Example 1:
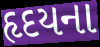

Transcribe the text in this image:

હૃદયના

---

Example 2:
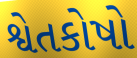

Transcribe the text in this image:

શ્વેતકોષો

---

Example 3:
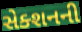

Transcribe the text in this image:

સેક્શનની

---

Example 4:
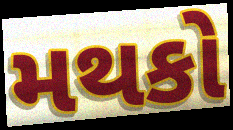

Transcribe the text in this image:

મથકો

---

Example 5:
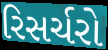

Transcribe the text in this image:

રિસર્ચરો